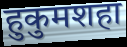
हुकुमशहा